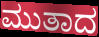
ಮುತಾದ